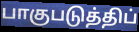
பாகுபடுத்திப்